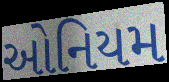
ઓનિયમ